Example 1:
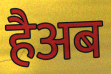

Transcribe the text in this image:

हैअब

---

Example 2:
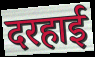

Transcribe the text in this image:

दरहाई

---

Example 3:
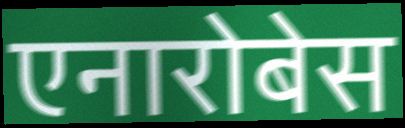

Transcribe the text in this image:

एनारोबेस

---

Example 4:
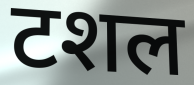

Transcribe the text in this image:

टशल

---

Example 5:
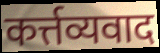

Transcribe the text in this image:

कर्त्तव्यवाद